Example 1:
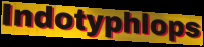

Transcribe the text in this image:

Indotyphlops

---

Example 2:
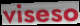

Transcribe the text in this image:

viseso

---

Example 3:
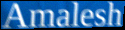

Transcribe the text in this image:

Amalesh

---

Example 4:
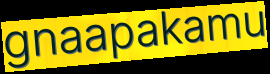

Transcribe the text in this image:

gnaapakamu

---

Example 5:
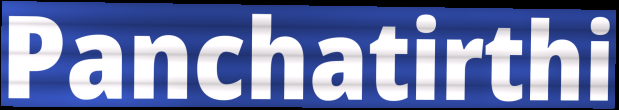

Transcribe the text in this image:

Panchatirthi